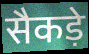
सैकड़े